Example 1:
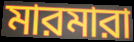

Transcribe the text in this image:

মারমারা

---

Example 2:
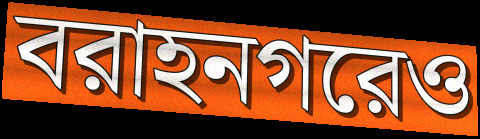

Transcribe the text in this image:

বরাহনগরেও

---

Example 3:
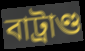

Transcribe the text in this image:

বাট্রাণ্ড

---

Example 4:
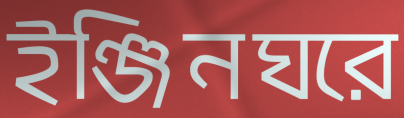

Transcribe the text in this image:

ইঞ্জিনঘরে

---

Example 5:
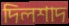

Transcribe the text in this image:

দিলশাদ